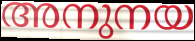
അനുനയ